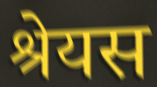
श्रेयस